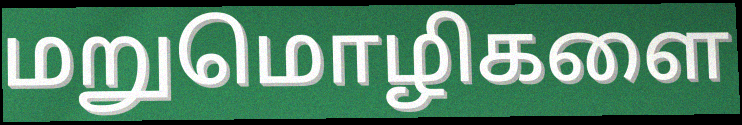
மறுமொழிகளை